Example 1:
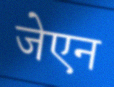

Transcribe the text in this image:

जेएन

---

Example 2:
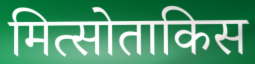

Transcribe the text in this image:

मित्सोताकिस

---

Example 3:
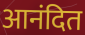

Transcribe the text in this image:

आनंदित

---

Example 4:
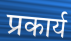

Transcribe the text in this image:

प्रकार्य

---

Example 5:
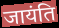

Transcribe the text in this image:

जायंति